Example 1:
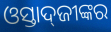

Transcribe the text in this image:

ଓସ୍ତାଦ୍‌ଜୀଙ୍କର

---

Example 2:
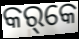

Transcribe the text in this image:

କର୍‌କେ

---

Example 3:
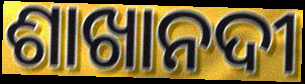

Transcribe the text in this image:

ଶାଖାନଦୀ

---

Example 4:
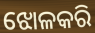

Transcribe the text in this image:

ଝୋଳକରି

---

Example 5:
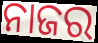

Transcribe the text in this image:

ନାଜର